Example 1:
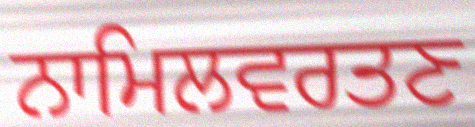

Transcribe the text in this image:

ਨਾਮਿਲਵਰਤਣ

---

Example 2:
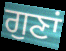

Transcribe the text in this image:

ਗੁਣਾਂ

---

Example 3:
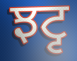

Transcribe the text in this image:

ਝਟ੍ਟ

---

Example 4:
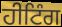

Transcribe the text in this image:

ਹੀਟਿੰਗ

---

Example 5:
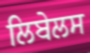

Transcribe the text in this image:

ਲਿਬੇਲਸ